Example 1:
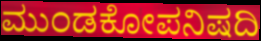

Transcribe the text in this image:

ಮುಂಡಕೋಪನಿಷದಿ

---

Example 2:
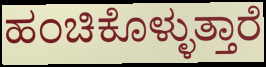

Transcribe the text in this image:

ಹಂಚಿಕೊಳ್ಳುತ್ತಾರೆ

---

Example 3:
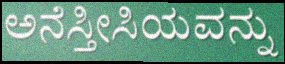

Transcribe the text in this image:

ಅನೆಸ್ತೀಸಿಯವನ್ನು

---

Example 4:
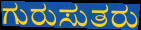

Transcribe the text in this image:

ಗುರುಸುತರು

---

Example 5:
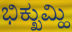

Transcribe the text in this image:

ಭಿಕ್ಖುಮ್ಹಿ